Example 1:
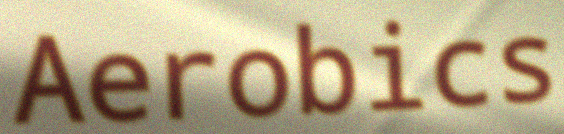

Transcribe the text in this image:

Aerobics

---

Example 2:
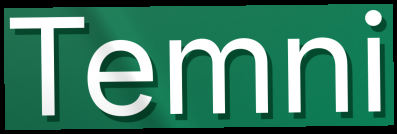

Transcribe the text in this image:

Temni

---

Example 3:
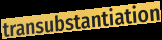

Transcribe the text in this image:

transubstantiation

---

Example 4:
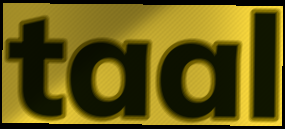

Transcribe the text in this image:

taal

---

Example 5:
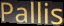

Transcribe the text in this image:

Pallis